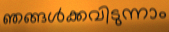
ഞങ്ങൾക്കവിടുന്നാം